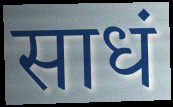
साधं